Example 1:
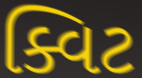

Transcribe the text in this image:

ક્વિટ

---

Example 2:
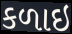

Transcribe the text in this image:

કળાઇ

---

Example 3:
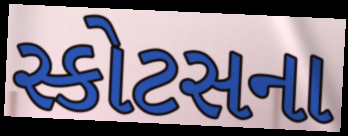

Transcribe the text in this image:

સ્કોટસના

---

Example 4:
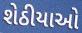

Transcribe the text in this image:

શેઠીયાઓ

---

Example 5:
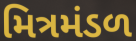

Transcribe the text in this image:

મિત્રમંડળ